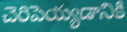
చెరిపెయ్యడానికి